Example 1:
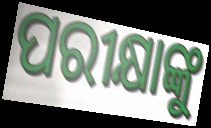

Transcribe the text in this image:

ପରୀକ୍ଷାଙ୍କୁ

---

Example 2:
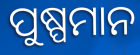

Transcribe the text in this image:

ପୁଷ୍ପମାନ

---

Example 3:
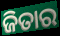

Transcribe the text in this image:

ଜିତାର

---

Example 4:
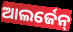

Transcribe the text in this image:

ଆଲର୍ଜେନ୍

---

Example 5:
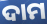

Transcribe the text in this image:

ଦାମ